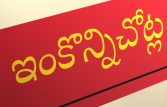
ఇంకొన్నిచోట్ల